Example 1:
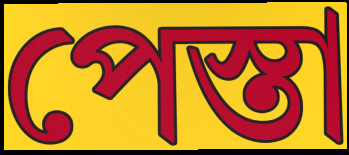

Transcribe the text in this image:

পেস্তা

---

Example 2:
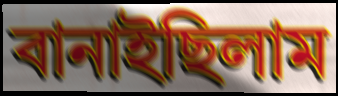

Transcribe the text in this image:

বানাইছিলাম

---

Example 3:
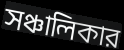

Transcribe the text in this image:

সঞ্চালিকার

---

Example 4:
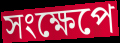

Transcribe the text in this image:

সংক্ষেপে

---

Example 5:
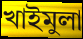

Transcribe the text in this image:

খাইমুলা